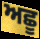
ਅਛੂ